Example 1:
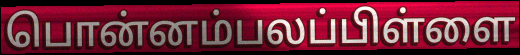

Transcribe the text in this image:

பொன்னம்பலப்பிள்ளை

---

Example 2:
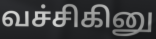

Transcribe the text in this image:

வச்சிகினு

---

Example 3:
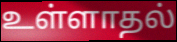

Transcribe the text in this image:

உள்ளாதல்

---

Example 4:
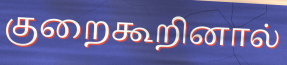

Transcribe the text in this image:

குறைகூறினால்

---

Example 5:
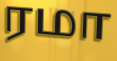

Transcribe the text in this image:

ரமா